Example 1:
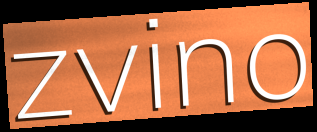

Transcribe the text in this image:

zvino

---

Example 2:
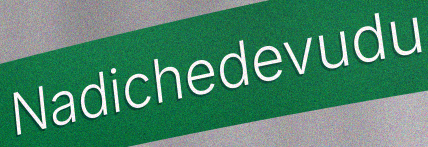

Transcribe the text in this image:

Nadichedevudu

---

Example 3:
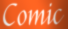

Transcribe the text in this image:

Comic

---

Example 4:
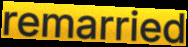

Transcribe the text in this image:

remarried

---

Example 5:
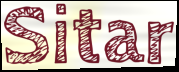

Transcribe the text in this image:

Sitar